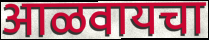
आळवायचा